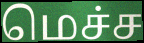
மெச்ச